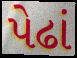
પેઢાં